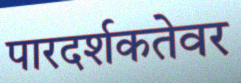
पारदर्शकतेवर